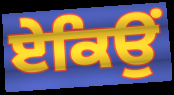
ਏਕਿਉਂ